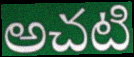
అచటి